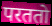
परततो